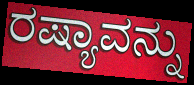
ರಷ್ಯಾವನ್ನು